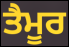
ਤੈਮੂਰ